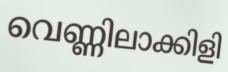
വെണ്ണിലാക്കിളി